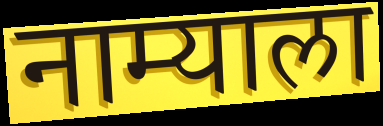
नाम्याला